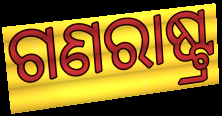
ଗଣରାଷ୍ଟ୍ର